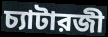
চ্যাটারজী